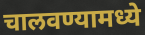
चालवण्यामध्ये